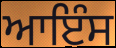
ਆਇੰਸ